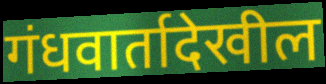
गंधवार्तादेखील